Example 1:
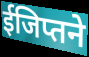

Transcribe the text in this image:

ईजिप्तने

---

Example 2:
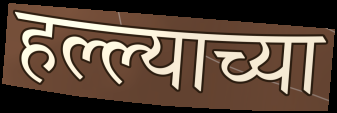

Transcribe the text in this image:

हल्ल्याच्या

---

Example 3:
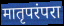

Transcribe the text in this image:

मातृपरंपरा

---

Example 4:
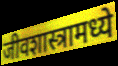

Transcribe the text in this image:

जीवशास्त्रामध्ये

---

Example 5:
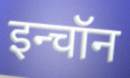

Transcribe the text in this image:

इन्चॉन